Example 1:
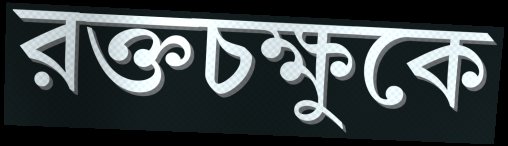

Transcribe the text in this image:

রক্তচক্ষুকে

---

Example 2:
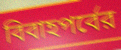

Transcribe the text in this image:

বিবাহপর্বের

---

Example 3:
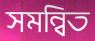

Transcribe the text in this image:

সমন্বিত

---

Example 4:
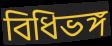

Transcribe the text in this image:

বিধিভঙ্গ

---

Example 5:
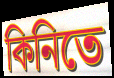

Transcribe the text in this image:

কিনিতে